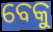
ବେକୁ